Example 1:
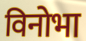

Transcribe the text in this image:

विनोभा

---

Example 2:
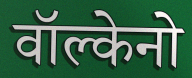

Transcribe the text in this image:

वॉल्केनो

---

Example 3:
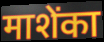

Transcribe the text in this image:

माशेंका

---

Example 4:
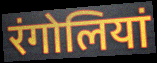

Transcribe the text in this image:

रंगोलियां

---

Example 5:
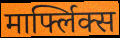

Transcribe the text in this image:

मार्फ्लिक्स